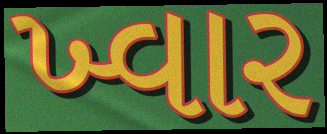
ખ્વાર